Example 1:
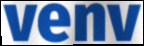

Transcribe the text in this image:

venv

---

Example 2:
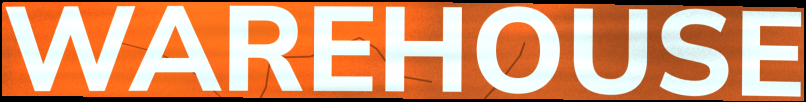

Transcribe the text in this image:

WAREHOUSE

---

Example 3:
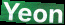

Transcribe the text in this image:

Yeon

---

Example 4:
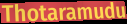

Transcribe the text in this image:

Thotaramudu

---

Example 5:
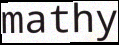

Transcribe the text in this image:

mathy